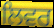
ਲਿਵਰ